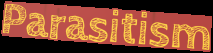
Parasitism